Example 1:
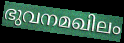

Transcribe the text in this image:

ഭുവനമഖിലം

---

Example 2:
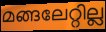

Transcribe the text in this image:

മങ്ങലേറ്റില്ല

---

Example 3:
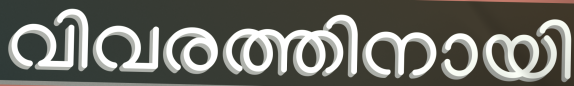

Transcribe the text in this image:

വിവരത്തിനായി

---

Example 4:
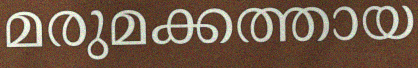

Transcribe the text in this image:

മരുമക്കത്തായ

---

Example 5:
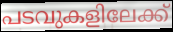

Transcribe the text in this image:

പടവുകളിലേക്ക്